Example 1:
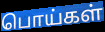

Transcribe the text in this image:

பொய்கள்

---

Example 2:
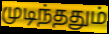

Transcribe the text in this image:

முடிந்ததும்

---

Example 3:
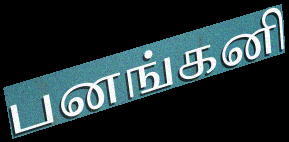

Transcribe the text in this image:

பனங்கனி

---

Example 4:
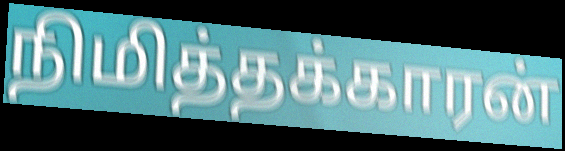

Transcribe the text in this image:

நிமித்தக்காரன்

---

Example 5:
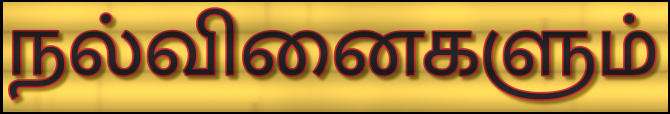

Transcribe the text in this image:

நல்வினைகளும்